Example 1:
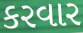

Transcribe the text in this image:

કરવાર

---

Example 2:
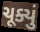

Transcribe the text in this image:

ચૂક્યું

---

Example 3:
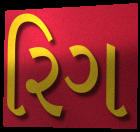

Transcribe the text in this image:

રિગ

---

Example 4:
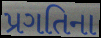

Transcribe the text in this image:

પ્રગતિના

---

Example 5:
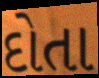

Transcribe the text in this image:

દોતા